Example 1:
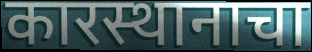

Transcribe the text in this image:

कारस्थानाचा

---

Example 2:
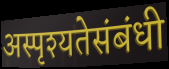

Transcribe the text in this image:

अस्पृश्यतेसंबंधी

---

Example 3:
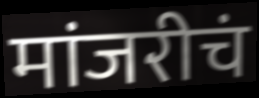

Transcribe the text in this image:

मांजरीचं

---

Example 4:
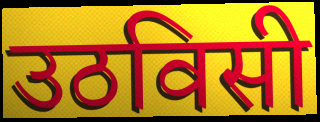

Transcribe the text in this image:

उठविसी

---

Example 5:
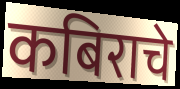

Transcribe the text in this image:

कबिराचे